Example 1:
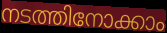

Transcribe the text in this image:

നടത്തിനോക്കാം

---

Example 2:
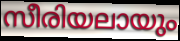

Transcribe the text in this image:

സീരിയലായും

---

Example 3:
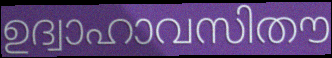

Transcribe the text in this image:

ഉദ്വാഹാവസിതൗ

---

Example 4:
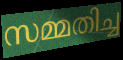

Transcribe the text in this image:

സമ്മതിച്ച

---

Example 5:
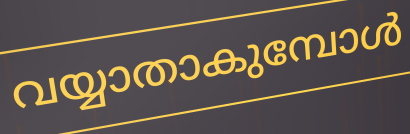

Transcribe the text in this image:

വയ്യാതാകുമ്പോൾ